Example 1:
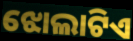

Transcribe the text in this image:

ଝୋଲାଟିଏ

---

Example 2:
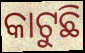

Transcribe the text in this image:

କାଟୁଛି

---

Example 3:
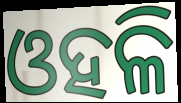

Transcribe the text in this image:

ଓହଳି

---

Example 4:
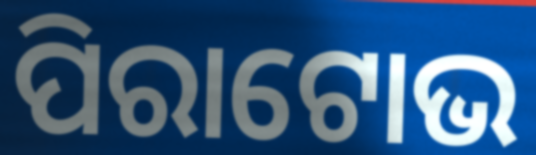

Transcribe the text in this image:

ପିରାଟୋଭ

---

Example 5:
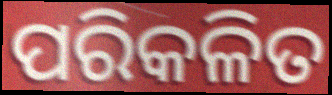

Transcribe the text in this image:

ପରିକଳିତ